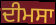
ਦੀਮਸਾ